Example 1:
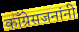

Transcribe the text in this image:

काँग्रेसजनांनी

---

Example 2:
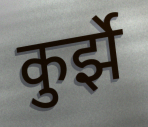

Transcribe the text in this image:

कुर्झे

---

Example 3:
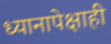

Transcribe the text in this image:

ध्यानापेक्षाही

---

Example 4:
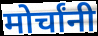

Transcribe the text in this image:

मोर्चांनी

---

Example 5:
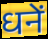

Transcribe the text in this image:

धनें